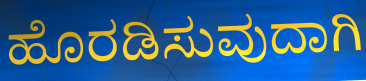
ಹೊರಡಿಸುವುದಾಗಿ